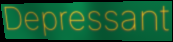
Depressant